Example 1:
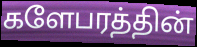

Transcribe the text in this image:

களேபரத்தின்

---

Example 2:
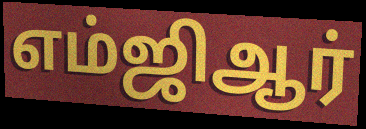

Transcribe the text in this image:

எம்ஜிஆர்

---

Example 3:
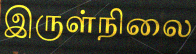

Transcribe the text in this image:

இருள்நிலை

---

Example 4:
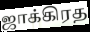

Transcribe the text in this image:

ஜாக்கிரத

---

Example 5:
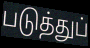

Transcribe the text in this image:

படுத்துப்